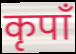
कृपाँ